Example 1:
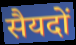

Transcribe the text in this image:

सैयदों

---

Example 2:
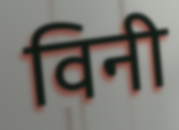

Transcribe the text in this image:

विनी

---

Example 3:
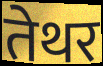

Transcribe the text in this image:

तेथर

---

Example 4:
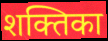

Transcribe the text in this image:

शक्तिका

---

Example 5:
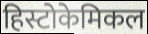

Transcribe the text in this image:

हिस्टोकेमिकल